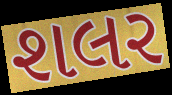
શલર